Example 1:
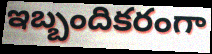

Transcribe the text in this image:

ఇబ్బందికరంగా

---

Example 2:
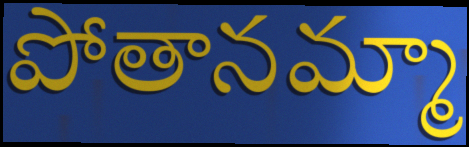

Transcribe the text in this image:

పోతానమ్మా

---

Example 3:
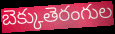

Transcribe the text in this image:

బెక్కుతెరంగుల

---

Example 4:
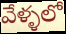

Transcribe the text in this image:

వేళ్ళలో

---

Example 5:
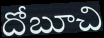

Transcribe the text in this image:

దోబూచి